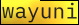
wayuni